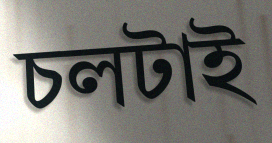
চলটাই